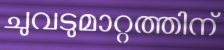
ചുവടുമാറ്റത്തിന്